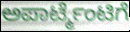
ಅಪಾರ್ಟ್ಮೆಂಟಿಗೆ